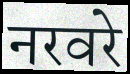
नरवरे